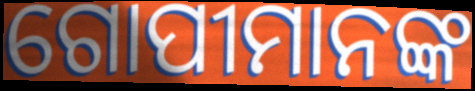
ଗୋପୀମାନଙ୍କ